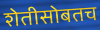
शेतीसोबतच